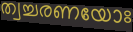
ത്വച്ചരണയോഃ